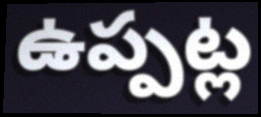
ఉప్పట్ల